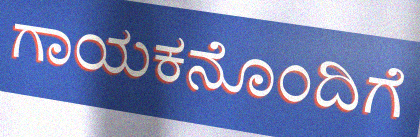
ಗಾಯಕನೊಂದಿಗೆ